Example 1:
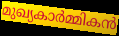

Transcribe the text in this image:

മുഖ്യകാർമ്മികൻ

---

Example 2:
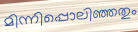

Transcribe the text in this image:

മിന്നിപ്പൊലിഞ്ഞതും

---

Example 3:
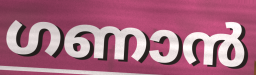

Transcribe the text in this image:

ഗണാൻ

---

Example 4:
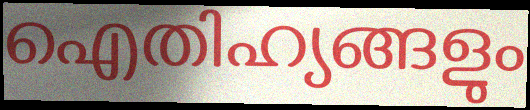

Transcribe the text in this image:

ഐതിഹ്യങ്ങളും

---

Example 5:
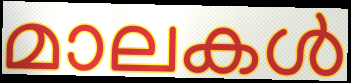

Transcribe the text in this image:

മാലകൾ